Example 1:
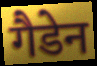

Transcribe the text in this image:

गैडेन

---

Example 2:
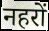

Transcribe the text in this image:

नहरों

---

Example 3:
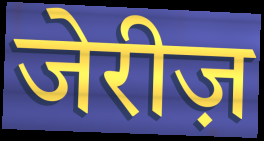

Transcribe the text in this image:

जेरीज़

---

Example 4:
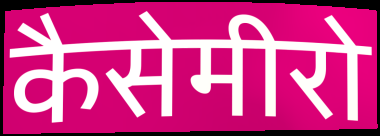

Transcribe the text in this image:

कैसेमीरो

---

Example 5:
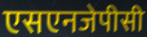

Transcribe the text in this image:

एसएनजेपीसी